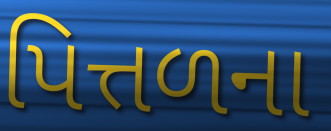
પિત્તળના